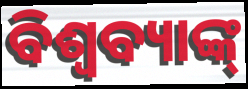
ବିଶ୍ବବ୍ୟାଙ୍କ୍